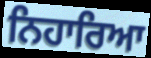
ਨਿਹਾਰਿਆ